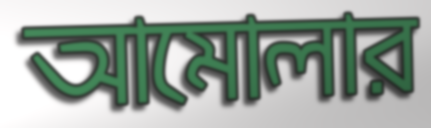
আমোলার